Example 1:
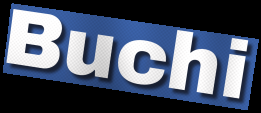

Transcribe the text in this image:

Buchi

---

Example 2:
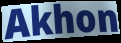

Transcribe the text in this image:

Akhon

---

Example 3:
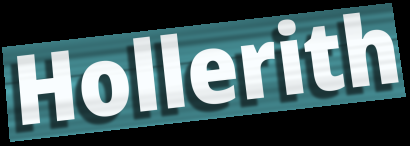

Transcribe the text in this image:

Hollerith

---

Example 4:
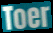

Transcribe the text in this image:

Toer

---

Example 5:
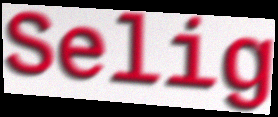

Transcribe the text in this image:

Selig